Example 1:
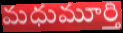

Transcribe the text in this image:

మధుమూర్తి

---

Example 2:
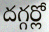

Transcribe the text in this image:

దగ్గర్లో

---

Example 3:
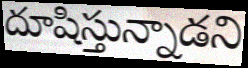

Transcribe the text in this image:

దూషిస్తున్నాడని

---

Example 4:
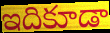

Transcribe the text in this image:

ఇదికూడా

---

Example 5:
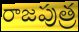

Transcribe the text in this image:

రాజపుత్ర